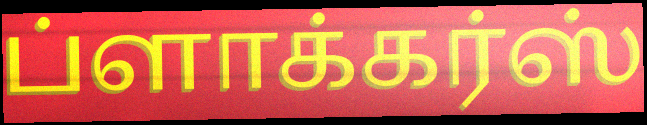
ப்ளாக்கர்ஸ்